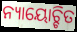
ନ୍ୟାୟୋଚ୍ଚିତ